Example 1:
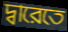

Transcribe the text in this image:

দ্বারেতে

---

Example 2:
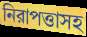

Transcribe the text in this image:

নিরাপত্তাসহ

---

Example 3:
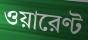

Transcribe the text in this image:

ওয়ারেণ্ট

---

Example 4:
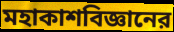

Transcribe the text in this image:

মহাকাশবিজ্ঞানের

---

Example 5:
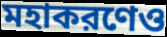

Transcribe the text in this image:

মহাকরণেও